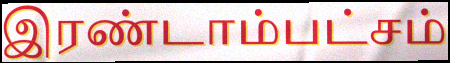
இரண்டாம்பட்சம்